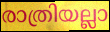
രാത്രിയല്ലാ